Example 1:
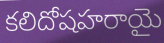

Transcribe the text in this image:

కలిదోషహరాయై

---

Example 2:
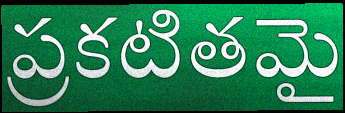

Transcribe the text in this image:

ప్రకటితమై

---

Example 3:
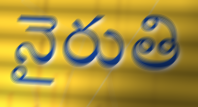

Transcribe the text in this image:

నైరుతి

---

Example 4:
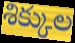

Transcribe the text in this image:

శిక్కుల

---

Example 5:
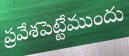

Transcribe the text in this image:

ప్రవేశపెట్టేముందు